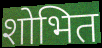
शोभित